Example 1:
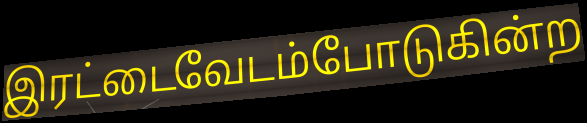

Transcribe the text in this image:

இரட்டைவேடம்போடுகின்ற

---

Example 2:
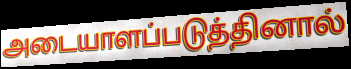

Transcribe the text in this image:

அடையாளப்படுத்தினால்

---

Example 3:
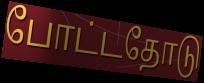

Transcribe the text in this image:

போட்டதோடு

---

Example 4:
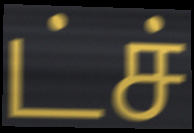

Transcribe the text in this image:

ட்ச்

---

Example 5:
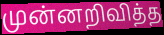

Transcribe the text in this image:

முன்னறிவித்த